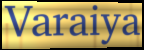
Varaiya